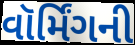
વૉર્મિંગની